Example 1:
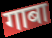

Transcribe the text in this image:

गाबा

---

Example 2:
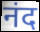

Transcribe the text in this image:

नंद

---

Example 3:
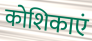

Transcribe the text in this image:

कोशिकाएं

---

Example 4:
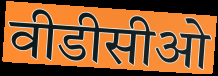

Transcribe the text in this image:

वीडीसीओ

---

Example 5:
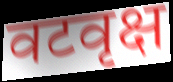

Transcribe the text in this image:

वटवृक्ष